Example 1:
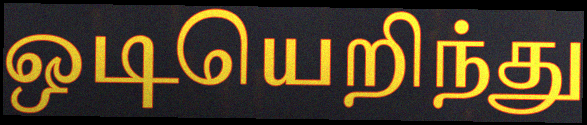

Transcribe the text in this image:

ஒடியெறிந்து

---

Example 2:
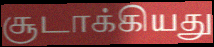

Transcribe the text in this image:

சூடாக்கியது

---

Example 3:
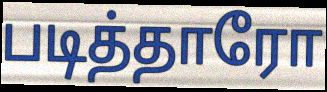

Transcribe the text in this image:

படித்தாரோ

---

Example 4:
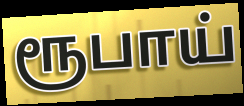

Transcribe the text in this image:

ரூபாய்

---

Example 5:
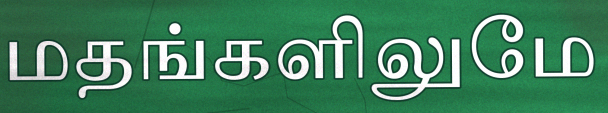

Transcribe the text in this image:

மதங்களிலுமே